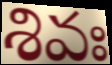
శివః